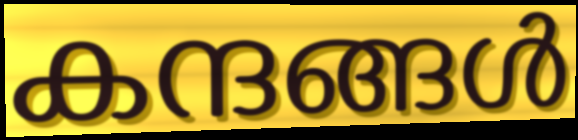
കന്ദങ്ങൾ